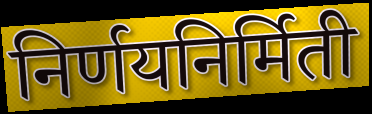
निर्णयनिर्मिती